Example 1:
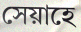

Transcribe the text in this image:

সেয়াহে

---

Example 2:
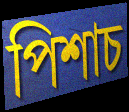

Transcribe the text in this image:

পিশাচ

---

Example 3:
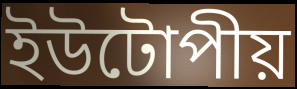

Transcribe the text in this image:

ইউটোপীয়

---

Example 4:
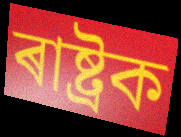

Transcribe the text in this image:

ৰাষ্ট্ৰক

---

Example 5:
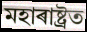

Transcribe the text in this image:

মহাৰাষ্ট্ৰত